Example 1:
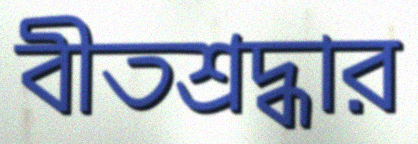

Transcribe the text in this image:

বীতশ্রদ্ধার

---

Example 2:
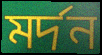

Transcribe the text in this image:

মর্দন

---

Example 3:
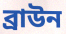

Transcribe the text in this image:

ব্রাউন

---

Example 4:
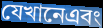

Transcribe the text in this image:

যেখানেএবং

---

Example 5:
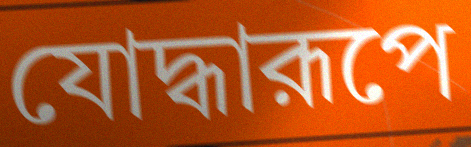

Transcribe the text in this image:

যোদ্ধারূপে